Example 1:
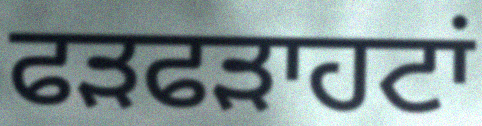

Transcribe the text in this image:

ਫੜਫੜਾਹਟਾਂ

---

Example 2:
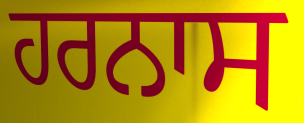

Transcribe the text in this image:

ਹਰਨਾਸ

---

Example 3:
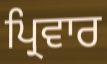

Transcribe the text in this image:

ਪ੍ਰਿਵਾਰ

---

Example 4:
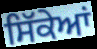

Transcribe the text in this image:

ਸਿੱਕੇਆਂ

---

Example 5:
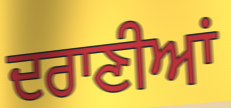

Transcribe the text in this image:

ਦਰਾਣੀਆਂ